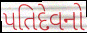
પતિદેવનો